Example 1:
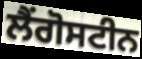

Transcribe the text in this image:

ਲੈਂਗੋਸਟੀਨ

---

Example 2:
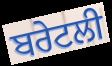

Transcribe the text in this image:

ਬਰੇਟਲੀ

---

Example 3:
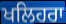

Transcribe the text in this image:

ਖਲਿਹਰਾ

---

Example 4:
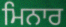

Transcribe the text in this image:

ਮਿਨਾਰ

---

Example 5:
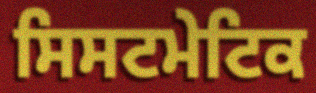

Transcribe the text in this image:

ਸਿਸਟਮੇਟਿਕ